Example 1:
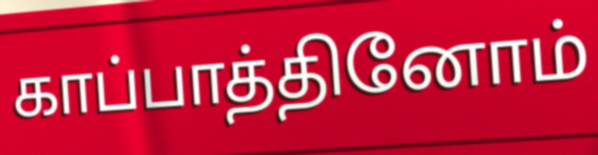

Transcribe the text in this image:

காப்பாத்தினோம்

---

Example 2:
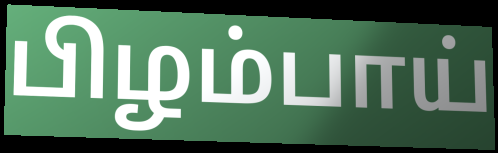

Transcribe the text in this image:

பிழம்பாய்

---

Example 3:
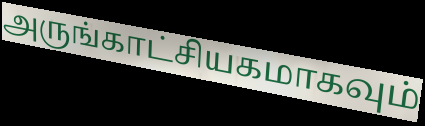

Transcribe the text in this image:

அருங்காட்சியகமாகவும்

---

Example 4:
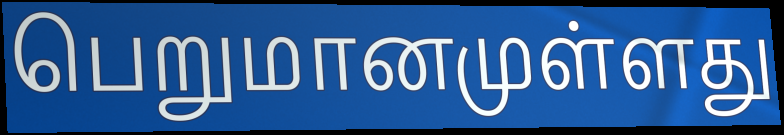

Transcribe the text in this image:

பெறுமானமுள்ளது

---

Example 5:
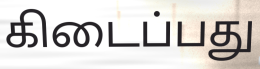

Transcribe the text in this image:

கிடைப்பது